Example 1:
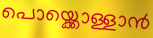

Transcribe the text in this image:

പൊയ്ക്കൊള്ളാൻ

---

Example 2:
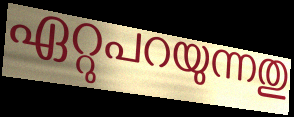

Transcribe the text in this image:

ഏറ്റുപറയുന്നതു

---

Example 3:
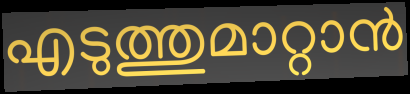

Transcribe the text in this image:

എടുത്തുമാറ്റാൻ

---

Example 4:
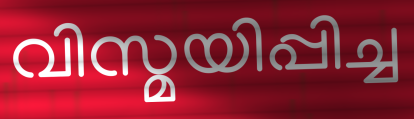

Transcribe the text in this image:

വിസ്മയിപ്പിച്ച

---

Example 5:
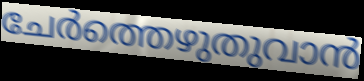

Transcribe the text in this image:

ചേർത്തെഴുതുവാൻ